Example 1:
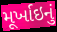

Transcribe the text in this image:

મૂર્ખાઇનું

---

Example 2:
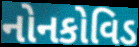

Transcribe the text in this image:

નોનકોવિડ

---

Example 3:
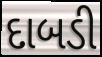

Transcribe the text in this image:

દાબડી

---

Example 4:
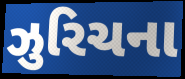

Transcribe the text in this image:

ઝુરિચના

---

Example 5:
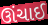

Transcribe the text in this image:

ઊંચાઈ